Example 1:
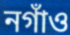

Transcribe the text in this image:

নগাঁও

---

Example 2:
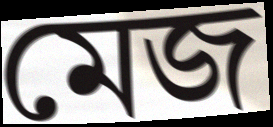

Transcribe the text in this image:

মেজ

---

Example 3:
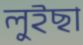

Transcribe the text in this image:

লুইছা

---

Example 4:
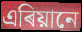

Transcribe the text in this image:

এৰিয়ানে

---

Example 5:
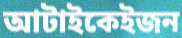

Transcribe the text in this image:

আটাইকেইজন